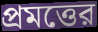
প্রমত্তের